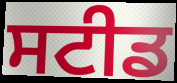
ਸਟੀਡ